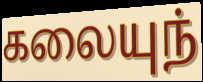
கலையுந்